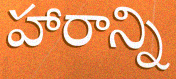
హారాన్ని